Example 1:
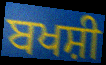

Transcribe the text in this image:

ਬਖਸ਼ੀ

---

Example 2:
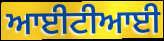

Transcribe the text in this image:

ਆਈਟੀਆਈ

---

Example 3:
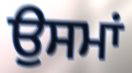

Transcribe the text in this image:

ਉਸਮਾਂ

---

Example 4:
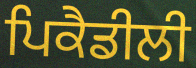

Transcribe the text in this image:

ਪਿਕੈਡੀਲੀ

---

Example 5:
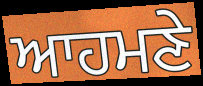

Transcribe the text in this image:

ਆਹਮਣੇ